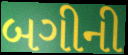
બગીની